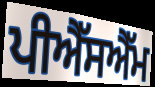
ਪੀਐੱਸਐੱਮ